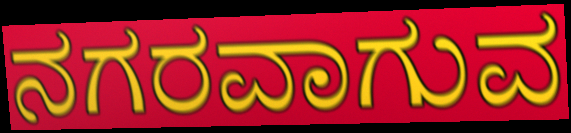
ನಗರವಾಗುವ